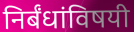
निर्बंधांविषयी